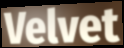
Velvet